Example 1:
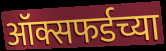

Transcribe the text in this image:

ऑक्सफर्डच्या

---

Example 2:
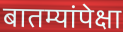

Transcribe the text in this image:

बातम्यांपेक्षा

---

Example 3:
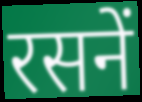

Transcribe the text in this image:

रसनें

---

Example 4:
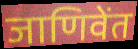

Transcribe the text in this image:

जाणिवेंत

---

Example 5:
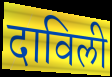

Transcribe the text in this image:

दाविली